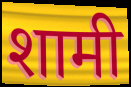
शामी